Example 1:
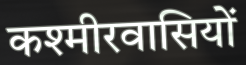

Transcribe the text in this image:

कश्मीरवासियों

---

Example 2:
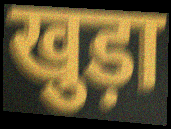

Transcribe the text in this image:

खुड़ा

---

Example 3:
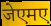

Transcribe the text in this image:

जेएमए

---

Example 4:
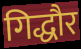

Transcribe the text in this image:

गिद्धौर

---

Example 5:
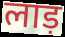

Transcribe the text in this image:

लाड़